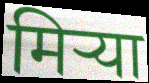
मिऱ्या